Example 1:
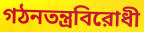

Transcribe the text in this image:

গঠনতন্ত্রবিরোধী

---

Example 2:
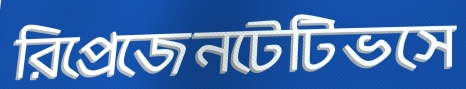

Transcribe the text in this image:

রিপ্রেজেনটেটিভসে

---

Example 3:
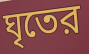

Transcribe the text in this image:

ঘৃতের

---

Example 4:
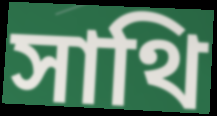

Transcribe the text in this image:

সাথি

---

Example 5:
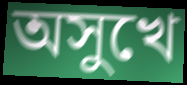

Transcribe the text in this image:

অসুখে